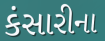
કંસારીના